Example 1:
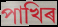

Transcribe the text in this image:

পাখিৰ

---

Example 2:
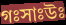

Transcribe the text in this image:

গঃসাঃউঃ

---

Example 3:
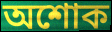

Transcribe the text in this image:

অশোক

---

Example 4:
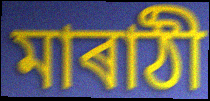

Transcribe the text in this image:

মাৰাঠী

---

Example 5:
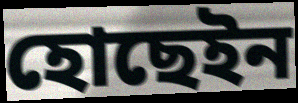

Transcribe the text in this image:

হোছেইন